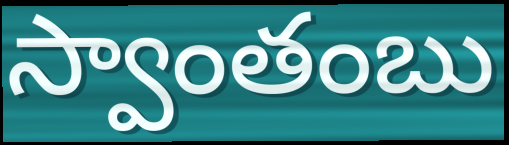
స్వాంతంబు